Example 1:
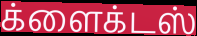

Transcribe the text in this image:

க்ளைக்டஸ்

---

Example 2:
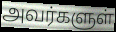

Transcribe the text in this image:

அவர்களுள்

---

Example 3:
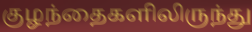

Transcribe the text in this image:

குழந்தைகளிலிருந்து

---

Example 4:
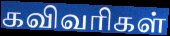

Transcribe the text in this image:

கவிவரிகள்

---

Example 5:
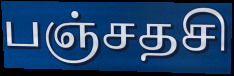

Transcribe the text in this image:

பஞ்சதசி